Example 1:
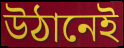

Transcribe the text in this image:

উঠানেই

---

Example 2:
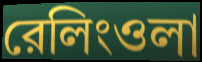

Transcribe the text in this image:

রেলিংওলা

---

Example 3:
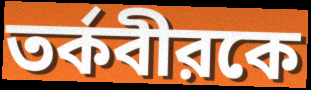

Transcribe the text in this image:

তর্কবীরকে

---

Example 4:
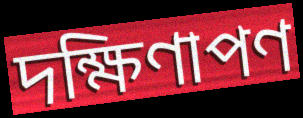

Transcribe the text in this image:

দক্ষিণাপণ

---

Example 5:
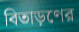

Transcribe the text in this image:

বিতাড়ণের